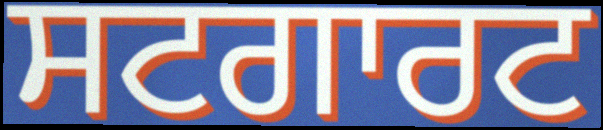
ਸਟਗਾਰਟ